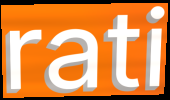
rati